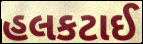
હલકટાઈ